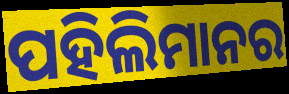
ପହିଲିମାନର